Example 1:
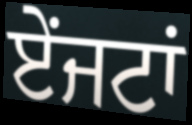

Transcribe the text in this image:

ਏਂਜਟਾਂ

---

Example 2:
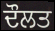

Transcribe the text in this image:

ਦੌਲਤ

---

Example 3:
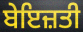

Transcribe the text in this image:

ਬੇਇਜ਼ਤੀ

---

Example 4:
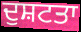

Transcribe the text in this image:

ਦੁਸ਼ਟਤਾ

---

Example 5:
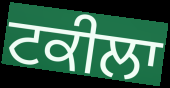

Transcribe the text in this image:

ਟਕੀਲਾ